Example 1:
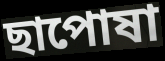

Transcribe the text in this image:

ছাপোষা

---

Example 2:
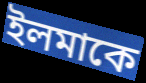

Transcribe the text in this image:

ইলমাকে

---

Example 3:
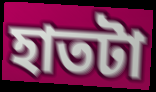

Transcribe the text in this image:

হাতটা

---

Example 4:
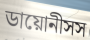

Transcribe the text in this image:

ডায়োনীসস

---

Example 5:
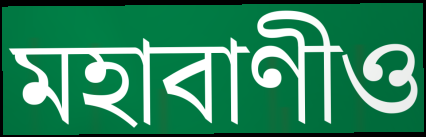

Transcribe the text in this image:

মহাবাণীও